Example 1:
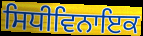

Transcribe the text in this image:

ਸਿਧੀਵਿਨਾਇਕ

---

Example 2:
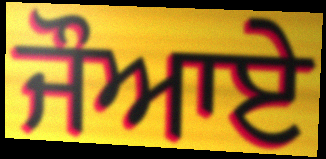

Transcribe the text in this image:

ਜੌਆਏ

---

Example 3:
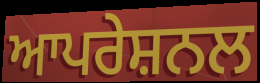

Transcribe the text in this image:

ਆਪਰੇਸ਼ਨਲ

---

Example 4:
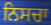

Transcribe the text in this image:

ਨਿਸਚਾ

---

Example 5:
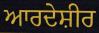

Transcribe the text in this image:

ਆਰਦੇਸ਼ੀਰ